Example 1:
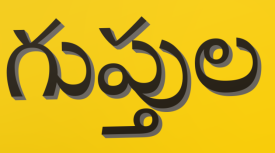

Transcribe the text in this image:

గుప్తుల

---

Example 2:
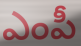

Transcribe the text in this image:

ఎంపీ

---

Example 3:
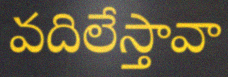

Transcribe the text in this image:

వదిలేస్తావా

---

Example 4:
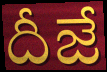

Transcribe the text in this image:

దీజే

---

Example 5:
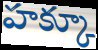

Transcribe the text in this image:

హక్కూ